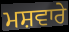
ਮਸ਼ਵਾਰੇ